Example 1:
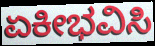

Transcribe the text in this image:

ಏಕೀಭವಿಸಿ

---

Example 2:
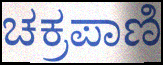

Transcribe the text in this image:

ಚಕ್ರಪಾಣಿ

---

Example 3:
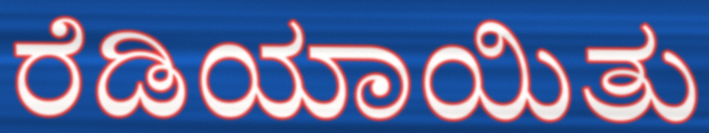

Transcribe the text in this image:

ರೆಡಿಯಾಯಿತು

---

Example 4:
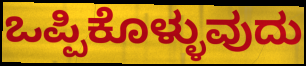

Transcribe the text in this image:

ಒಪ್ಪಿಕೊಳ್ಳುವುದು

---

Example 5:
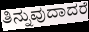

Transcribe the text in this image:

ತಿನ್ನುವುದಾದರೆ